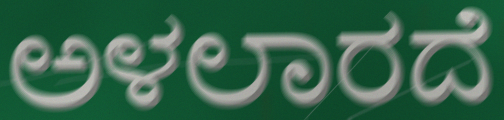
ಅಳಲಾರದೆ